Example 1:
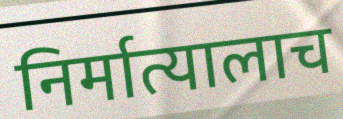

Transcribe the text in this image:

निर्मात्यालाच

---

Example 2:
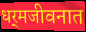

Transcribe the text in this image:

धर्मजीवनात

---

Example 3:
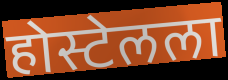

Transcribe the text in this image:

होस्टेलला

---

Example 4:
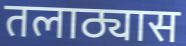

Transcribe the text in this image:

तलाठ्यास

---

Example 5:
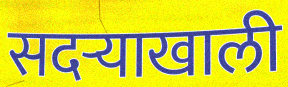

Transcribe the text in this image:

सदऱ्याखाली